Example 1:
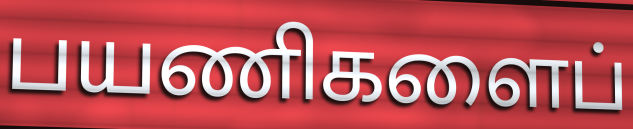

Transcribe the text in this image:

பயணிகளைப்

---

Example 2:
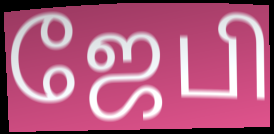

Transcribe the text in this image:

ஜேபி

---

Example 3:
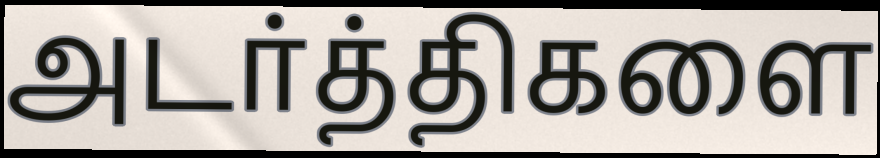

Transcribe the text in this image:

அடர்த்திகளை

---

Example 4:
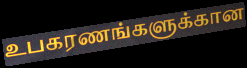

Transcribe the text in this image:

உபகரணங்களுக்கான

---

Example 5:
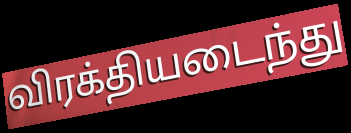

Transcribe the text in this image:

விரக்தியடைந்து